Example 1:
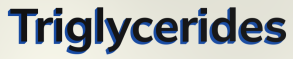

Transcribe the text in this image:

Triglycerides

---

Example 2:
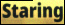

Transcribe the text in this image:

Staring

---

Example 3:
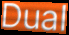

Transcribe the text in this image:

Dual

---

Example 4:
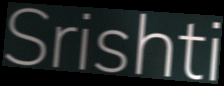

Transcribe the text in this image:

Srishti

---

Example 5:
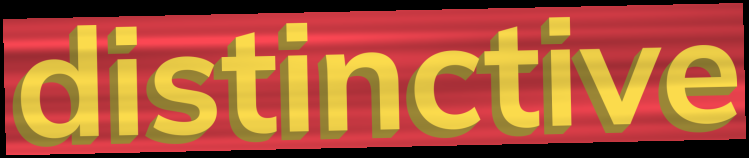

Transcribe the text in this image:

distinctive